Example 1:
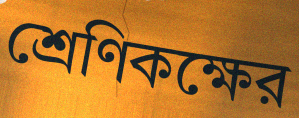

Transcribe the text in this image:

শ্রেণিকক্ষের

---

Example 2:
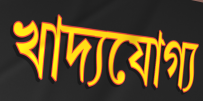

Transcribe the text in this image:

খাদ্যযোগ্য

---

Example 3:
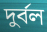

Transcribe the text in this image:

দুর্বল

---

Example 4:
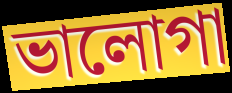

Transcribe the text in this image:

ভালোগা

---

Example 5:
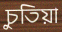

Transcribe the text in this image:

চুতিয়া